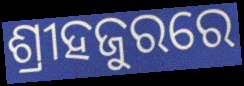
ଶ୍ରୀହଜୁରରେ